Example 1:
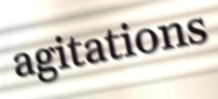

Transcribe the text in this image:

agitations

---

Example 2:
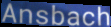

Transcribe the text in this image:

Ansbach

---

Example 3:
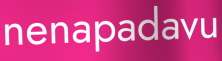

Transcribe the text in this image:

nenapadavu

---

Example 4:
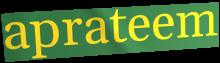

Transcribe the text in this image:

aprateem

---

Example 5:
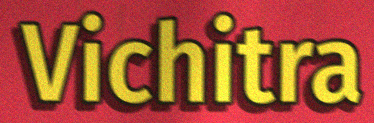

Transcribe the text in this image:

Vichitra